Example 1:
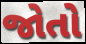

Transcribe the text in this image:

જોતો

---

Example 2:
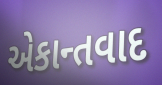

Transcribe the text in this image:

એકાન્તવાદ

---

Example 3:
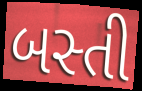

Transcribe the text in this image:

બસ્તી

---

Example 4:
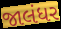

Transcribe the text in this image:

જાલંધર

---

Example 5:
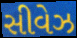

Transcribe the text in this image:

સીવેઝ